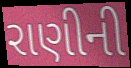
રાણીની